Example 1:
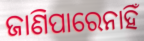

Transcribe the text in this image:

ଜାଣିପାରେନାହିଁ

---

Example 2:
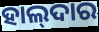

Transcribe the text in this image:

ହାଲ୍‌ଦାର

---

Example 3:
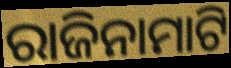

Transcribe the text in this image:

ରାଜିନାମାଟି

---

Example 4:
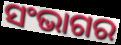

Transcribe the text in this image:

ସଂଭାଗର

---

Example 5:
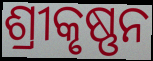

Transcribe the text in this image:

ଶ୍ରୀକୃଷ୍ଣନ